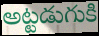
అట్టడుగుకి